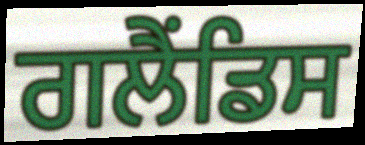
ਗਲੈਂਡਿਸ